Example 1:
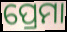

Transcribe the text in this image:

ପ୍ରେମା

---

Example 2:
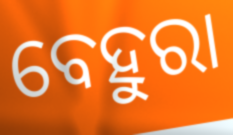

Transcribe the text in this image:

ବେହୁରା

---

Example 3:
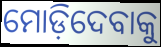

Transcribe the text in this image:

ମୋଡ଼ିଦେବାକୁ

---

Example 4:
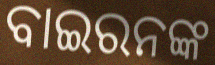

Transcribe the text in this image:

ବାଇରନଙ୍କ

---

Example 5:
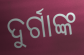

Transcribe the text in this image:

ଦୁର୍ଗାଙ୍କ